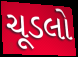
ચૂડલો